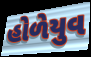
હોળેયુવ